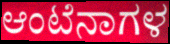
ಆಂಟೆನಾಗಳ